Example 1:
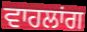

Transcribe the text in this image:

ਵਾਹਲਾਂਗ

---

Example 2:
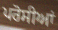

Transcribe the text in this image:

ਪਰੋਸੀਆਂ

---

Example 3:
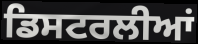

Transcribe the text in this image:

ਡਿਸਟਰਲੀਆਂ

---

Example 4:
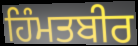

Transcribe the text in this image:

ਹਿੰਮਤਬੀਰ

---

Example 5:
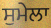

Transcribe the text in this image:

ਸੁਮੇਲਾ